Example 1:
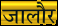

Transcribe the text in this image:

जालौर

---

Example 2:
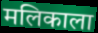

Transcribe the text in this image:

मलिकाला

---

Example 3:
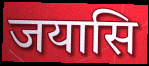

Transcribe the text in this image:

जयासि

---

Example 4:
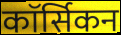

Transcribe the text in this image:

कॉर्सिकन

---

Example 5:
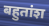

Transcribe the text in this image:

बहुतांश